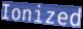
Ionized